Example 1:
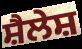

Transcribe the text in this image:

ਸ਼ੈਲੇਸ਼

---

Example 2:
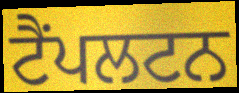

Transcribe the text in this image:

ਟੈਂਪਲਟਨ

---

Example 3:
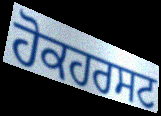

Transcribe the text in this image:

ਹੋਕਹਰਸਟ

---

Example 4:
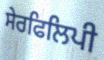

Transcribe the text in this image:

ਸੇਰਫਿਲਿਪੀ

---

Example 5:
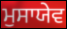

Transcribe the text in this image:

ਮੁਸਾਯੇਵ